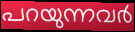
പറയുന്നവർ